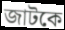
জাটকে